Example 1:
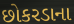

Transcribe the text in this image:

છોકરડાના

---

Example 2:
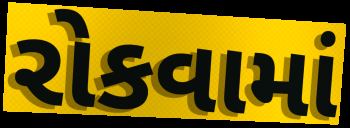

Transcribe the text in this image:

રોકવામાં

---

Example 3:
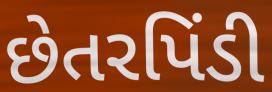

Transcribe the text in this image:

છેતરપિંડી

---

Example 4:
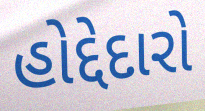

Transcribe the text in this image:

હોદ્દેદારો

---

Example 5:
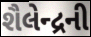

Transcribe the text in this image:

શૈલેન્દ્રની